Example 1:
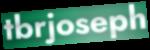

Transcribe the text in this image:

tbrjoseph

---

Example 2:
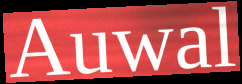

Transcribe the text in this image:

Auwal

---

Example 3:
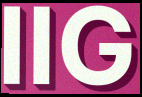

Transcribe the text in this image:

IIG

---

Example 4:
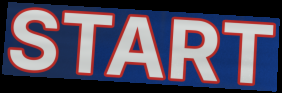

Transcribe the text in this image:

START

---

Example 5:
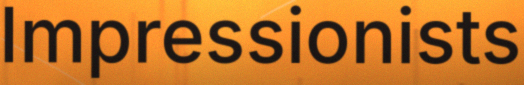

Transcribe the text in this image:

Impressionists